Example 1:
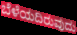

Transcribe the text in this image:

ಬೆಳೆಯದಿರುವುದು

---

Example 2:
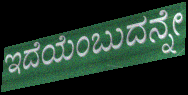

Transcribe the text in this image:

ಇದೆಯೆಂಬುದನ್ನೇ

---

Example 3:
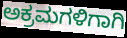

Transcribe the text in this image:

ಅಕ್ರಮಗಳಿಗಾಗಿ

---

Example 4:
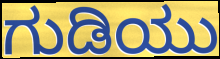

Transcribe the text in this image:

ಗುಡಿಯು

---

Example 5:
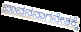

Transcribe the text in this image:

ಪಾವನನಾಗನೇತಕ್ಕೆ